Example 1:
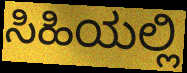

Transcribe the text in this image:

ಸಿಹಿಯಲ್ಲಿ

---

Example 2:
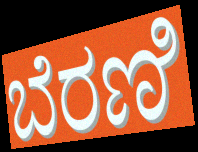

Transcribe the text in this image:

ಬೆರಣಿ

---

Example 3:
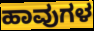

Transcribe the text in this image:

ಹಾವುಗಳ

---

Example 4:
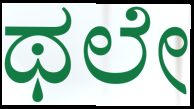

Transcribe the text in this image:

ಥಲೇ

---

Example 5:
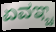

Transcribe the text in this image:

ಏವಞ್ಚ